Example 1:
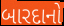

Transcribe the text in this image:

બારદાનો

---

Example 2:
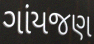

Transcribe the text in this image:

ગાંયજણ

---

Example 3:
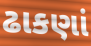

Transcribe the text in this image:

ઢાકણાં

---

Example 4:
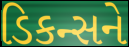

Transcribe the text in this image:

ડિકન્સને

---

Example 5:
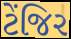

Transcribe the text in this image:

ટેંજિર